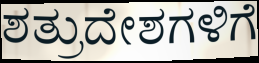
ಶತ್ರುದೇಶಗಳಿಗೆ